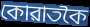
কোৱাতকৈ